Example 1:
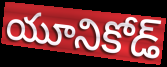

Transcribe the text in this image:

యూనికోడ్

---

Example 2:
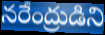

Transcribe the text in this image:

నరేంద్రుడిని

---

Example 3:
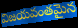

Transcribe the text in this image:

విజయవంతమైన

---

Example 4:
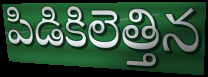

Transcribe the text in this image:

పిడికిలెత్తిన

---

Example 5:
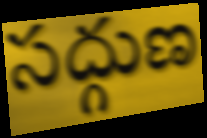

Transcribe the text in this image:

సద్గుణ